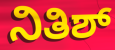
ನಿತಿಶ್